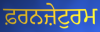
ਫ਼ਰਨਜ਼ੇਟੁਰਮ